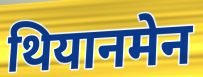
थियानमेन